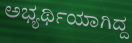
ಅಭ್ಯರ್ಥಿಯಾಗಿದ್ದ